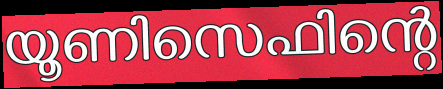
യൂണിസെഫിന്റെ